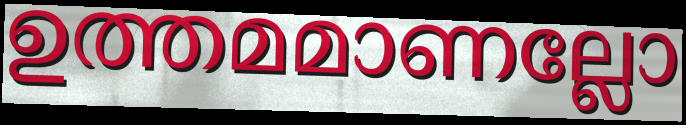
ഉത്തമമാണല്ലോ